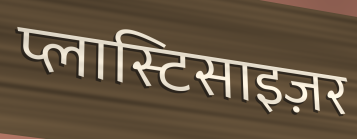
प्लास्टिसाइज़र